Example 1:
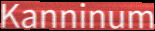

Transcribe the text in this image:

Kanninum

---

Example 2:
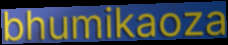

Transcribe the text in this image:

bhumikaoza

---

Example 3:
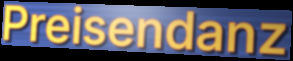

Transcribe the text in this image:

Preisendanz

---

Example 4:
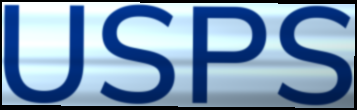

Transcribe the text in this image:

USPS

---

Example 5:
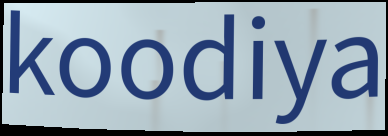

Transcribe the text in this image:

koodiya